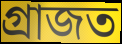
গ্ৰাজত